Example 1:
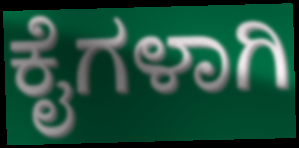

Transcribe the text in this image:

ಕೈಗಳಾಗಿ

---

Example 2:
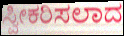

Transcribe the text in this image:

ಸ್ವೀಕರಿಸಲಾದ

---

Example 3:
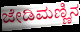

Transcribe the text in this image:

ಜೇಡಿಮಣ್ಣಿನ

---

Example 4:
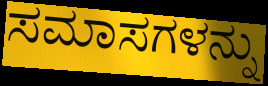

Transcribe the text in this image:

ಸಮಾಸಗಳನ್ನು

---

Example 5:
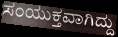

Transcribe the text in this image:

ಸಂಯುಕ್ತವಾಗಿದ್ದು